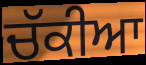
ਚੱਕੀਆ